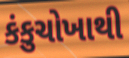
કંકુચોખાથી